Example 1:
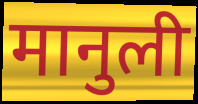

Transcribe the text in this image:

मानुली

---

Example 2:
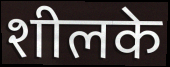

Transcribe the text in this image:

शीलके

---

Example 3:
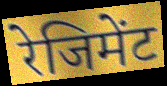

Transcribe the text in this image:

रेजिमेंट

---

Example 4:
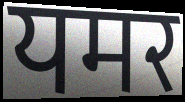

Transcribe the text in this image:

यमर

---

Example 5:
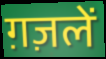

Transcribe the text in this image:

ग़ज़लें